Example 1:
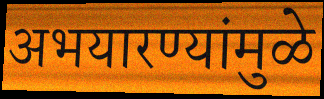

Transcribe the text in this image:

अभयारण्यांमुळे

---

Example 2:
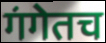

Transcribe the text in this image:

गंगेतच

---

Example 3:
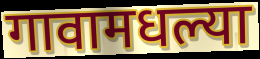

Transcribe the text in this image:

गावामधल्या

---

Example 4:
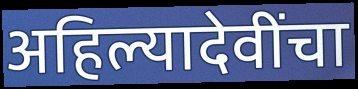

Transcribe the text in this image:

अहिल्यादेवींचा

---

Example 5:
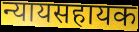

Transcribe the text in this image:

न्यायसहायक